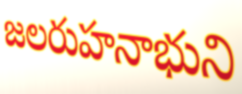
జలరుహనాభుని